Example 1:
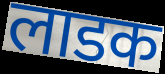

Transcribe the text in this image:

लाडक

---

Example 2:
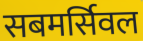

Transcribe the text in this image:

सबमर्सिवल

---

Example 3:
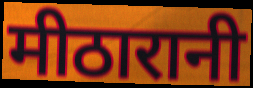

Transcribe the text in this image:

मीठारानी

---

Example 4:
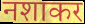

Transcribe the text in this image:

नशाकर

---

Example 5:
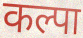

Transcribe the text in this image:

कल्पा